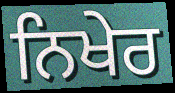
ਨਿਖੇਰ